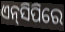
ଏନ୍‌ସିପିରେ